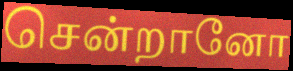
சென்றானோ